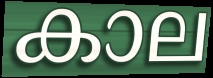
കാല